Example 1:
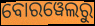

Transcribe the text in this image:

ବୋରୱେଲରୁ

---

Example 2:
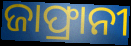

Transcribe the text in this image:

ଜାଫ୍ରାନୀ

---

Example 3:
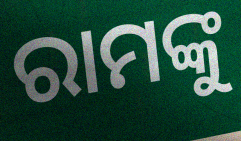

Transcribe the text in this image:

ରାମଙ୍କୁ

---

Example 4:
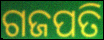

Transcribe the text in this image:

ଗଜପତି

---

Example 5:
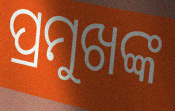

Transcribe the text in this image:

ପ୍ରମୁଖଙ୍କ